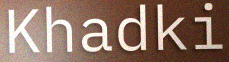
Khadki